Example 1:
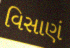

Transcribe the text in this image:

વિસાણં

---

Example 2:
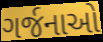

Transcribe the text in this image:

ગર્જનાઓ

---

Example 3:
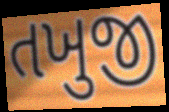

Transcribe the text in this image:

તખુજી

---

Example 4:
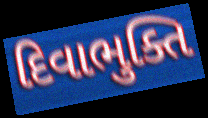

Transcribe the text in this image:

દિવાભુક્તિ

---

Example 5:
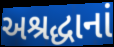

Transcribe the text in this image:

અશ્રદ્ધાનાં